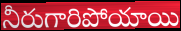
నీరుగారిపోయాయి